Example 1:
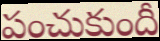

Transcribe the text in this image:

పంచుకుందీ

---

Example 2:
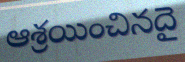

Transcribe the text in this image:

ఆశ్రయించినదై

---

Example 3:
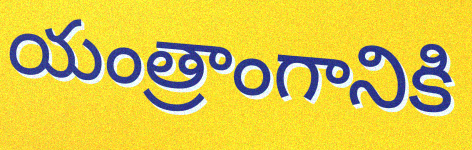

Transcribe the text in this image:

యంత్రాంగానికి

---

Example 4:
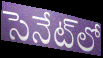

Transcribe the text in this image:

సెనేట్‌లో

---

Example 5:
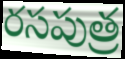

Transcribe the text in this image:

రసపుత్ర